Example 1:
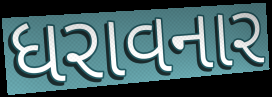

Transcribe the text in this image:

ધરાવનાર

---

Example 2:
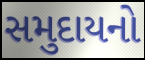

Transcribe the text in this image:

સમુદાયનો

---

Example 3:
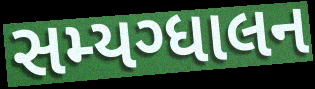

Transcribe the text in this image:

સમ્યગ્ધાલન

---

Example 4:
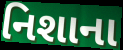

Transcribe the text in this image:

નિશાના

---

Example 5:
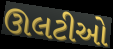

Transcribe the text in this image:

ઊલટીઓ